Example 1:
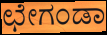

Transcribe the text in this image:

ಛೇಗಂಡಾ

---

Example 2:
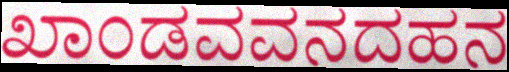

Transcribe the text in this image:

ಖಾಂಡವವನದಹನ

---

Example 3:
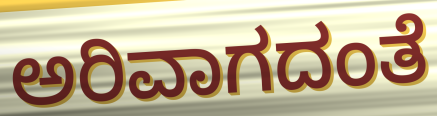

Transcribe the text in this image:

ಅರಿವಾಗದಂತೆ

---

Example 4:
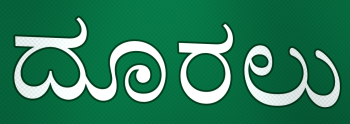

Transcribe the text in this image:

ದೂರಲು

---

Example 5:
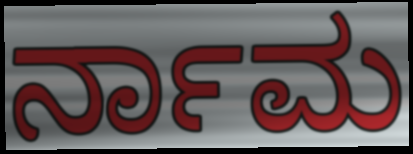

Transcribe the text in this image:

ರ್ನಾಮ